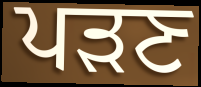
ਪੜਣ